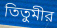
তিতুমীর